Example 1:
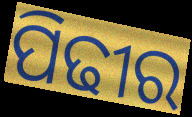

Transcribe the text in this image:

ପିଢୀର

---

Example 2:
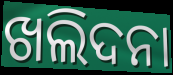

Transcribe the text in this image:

ଖଲିଦନା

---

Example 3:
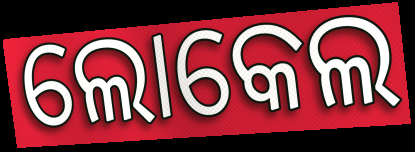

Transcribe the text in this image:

ଲୋକେଲ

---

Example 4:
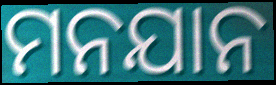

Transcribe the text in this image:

ମନଯାନ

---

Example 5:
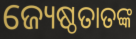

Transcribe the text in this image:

ଜ୍ୟେଷ୍ଠତାତଙ୍କ